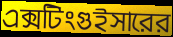
এক্সটিংগুইসারের